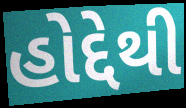
હોદ્દેથી